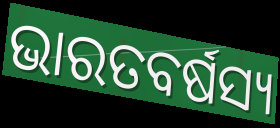
ଭାରତବର୍ଷସ୍ୟ